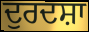
ਦੁਰਦਸ਼ਾ